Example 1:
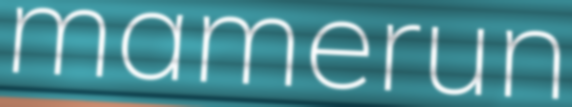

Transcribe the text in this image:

mamerun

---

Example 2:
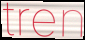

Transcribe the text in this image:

tren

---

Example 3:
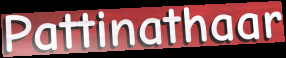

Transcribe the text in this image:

Pattinathaar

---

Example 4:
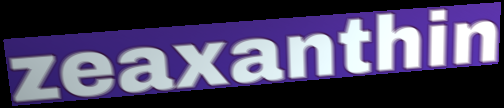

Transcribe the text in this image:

zeaxanthin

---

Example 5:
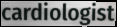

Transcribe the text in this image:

cardiologist